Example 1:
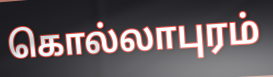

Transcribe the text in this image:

கொல்லாபுரம்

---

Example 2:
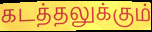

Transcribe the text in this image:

கடத்தலுக்கும்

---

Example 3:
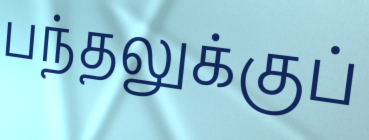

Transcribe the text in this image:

பந்தலுக்குப்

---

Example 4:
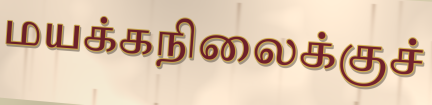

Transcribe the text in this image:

மயக்கநிலைக்குச்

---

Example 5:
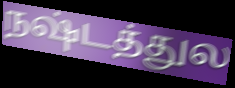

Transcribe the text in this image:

நஷ்டத்துல